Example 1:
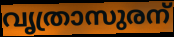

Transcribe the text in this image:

വൃത്രാസുരന്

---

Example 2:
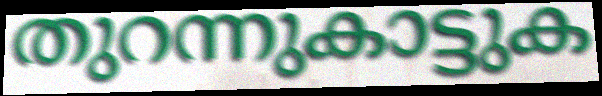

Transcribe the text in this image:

തുറന്നുകാട്ടുക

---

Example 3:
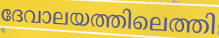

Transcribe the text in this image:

ദേവാലയത്തിലെത്തി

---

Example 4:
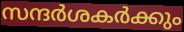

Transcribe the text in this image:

സന്ദർശകർക്കും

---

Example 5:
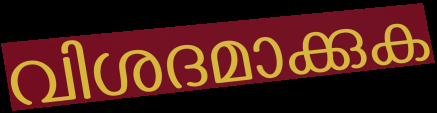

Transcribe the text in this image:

വിശദമാക്കുക